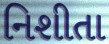
નિશીતા